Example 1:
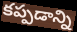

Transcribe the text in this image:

కప్పడాన్ని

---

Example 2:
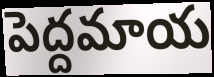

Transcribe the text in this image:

పెద్దమాయ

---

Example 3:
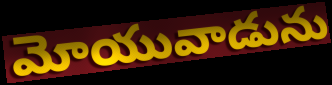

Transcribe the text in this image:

మోయువాడును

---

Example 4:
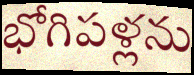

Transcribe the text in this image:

భోగిపళ్లను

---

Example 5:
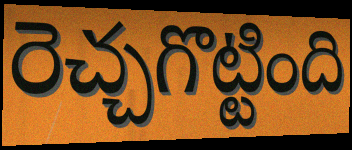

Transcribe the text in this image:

రెచ్చగొట్టింది